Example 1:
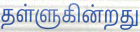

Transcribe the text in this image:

தள்ளுகின்றது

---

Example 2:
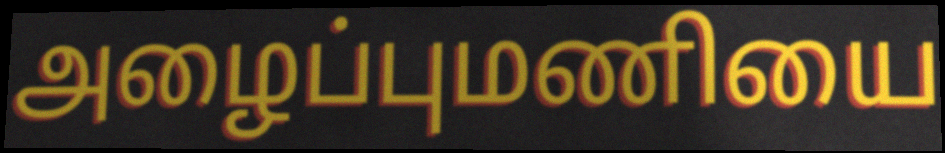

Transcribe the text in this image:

அழைப்புமணியை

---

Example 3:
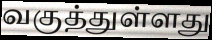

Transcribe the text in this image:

வகுத்துள்ளது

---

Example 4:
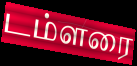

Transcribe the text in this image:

டம்ளரை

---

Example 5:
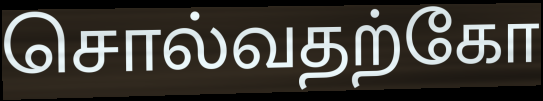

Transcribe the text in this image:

சொல்வதற்கோ